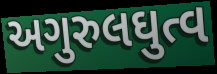
અગુરુલઘુત્વ